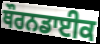
ਥੌਰਨਡਾਈਕ